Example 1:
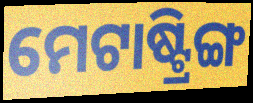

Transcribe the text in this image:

ମେଟାଷ୍ଟ୍ରିଙ୍ଗ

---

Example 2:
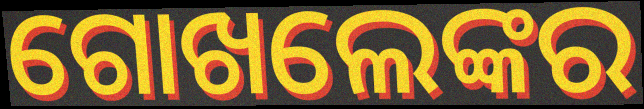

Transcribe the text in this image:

ଗୋଖଲେଙ୍କର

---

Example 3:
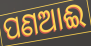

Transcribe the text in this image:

ପଣଆଈ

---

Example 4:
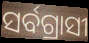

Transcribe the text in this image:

ସର୍ବଗ୍ରାସୀ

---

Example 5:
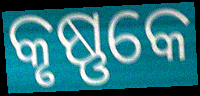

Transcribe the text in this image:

କୃଷ୍ଣକେ